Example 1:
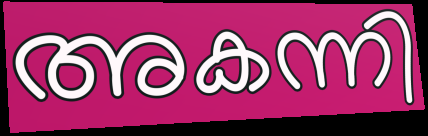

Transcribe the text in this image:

അകന്നി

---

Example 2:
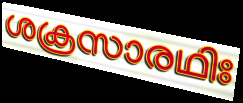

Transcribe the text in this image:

ശക്രസാരഥിഃ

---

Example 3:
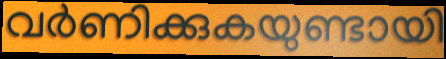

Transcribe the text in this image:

വർണിക്കുകയുണ്ടായി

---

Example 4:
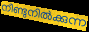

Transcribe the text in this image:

നീണ്ടുനിൽക്കുന്ന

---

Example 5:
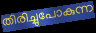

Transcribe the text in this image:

തിരിച്ചുപോകുന്ന